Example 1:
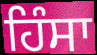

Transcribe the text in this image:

ਹਿੰਸਾ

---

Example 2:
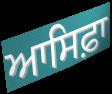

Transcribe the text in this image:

ਆਸਿਫ਼ਾ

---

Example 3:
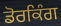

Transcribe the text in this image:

ਡੋਰਕਿੰਗ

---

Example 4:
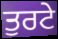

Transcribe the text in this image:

ਤੁਰਟੇ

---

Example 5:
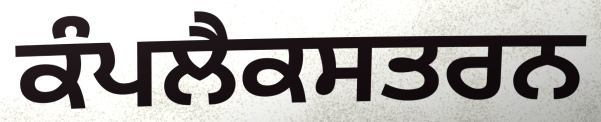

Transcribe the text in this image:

ਕੰਪਲੈਕਸਤਰਨ